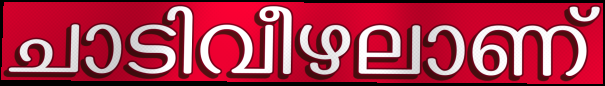
ചാടിവീഴലാണ്